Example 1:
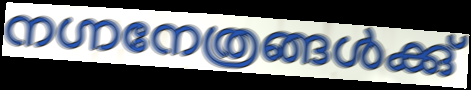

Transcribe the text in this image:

നഗ്നനേത്രങ്ങൾക്കു്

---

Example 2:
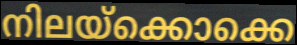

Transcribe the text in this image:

നിലയ്ക്കൊക്കെ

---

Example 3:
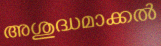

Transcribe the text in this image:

അശുദ്ധമാക്കൽ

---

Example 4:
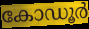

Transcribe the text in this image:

കോഡൂർ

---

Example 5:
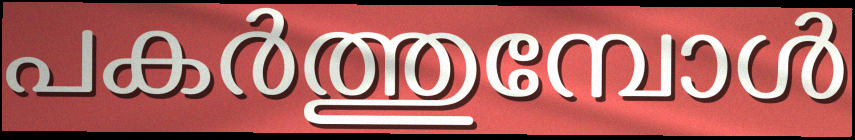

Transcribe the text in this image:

പകർത്തുമ്പോൾ